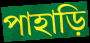
পাহাড়ি